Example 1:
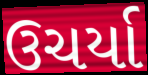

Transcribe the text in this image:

ઉચર્યા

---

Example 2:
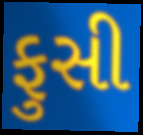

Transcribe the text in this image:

ફુસી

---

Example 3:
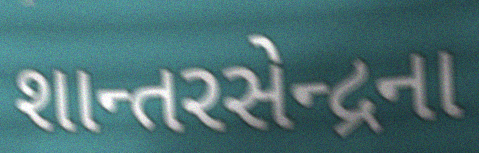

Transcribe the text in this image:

શાન્તરસેન્દ્રના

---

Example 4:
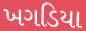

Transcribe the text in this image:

ખગડિયા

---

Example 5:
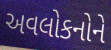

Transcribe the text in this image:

અવલોકનોને